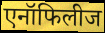
एनॉफिलीज